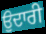
ਉਦਾਰੀ